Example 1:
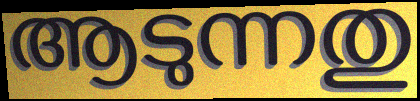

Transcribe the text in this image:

ആടുന്നതു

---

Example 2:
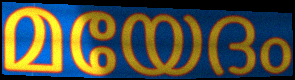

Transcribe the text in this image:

മയേദം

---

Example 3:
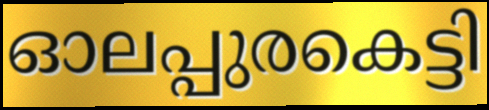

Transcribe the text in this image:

ഓലപ്പുരകെട്ടി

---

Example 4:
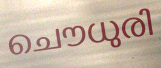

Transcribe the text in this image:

ചൌധുരി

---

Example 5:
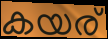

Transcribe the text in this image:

കയര്